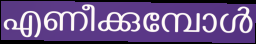
എണീക്കുമ്പോൾ